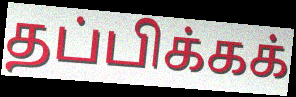
தப்பிக்கக்